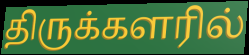
திருக்களரில்